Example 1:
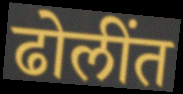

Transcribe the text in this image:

ढोलींत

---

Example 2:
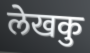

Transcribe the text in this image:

लेखकु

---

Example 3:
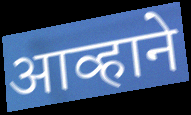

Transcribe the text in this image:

आव्हाने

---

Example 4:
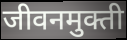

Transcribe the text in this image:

जीवनमुक्ती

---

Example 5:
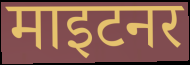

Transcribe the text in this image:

माइटनर